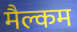
मैल्कम